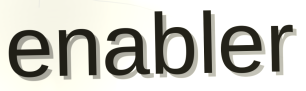
enabler